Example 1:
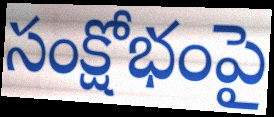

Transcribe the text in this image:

సంక్షోభంపై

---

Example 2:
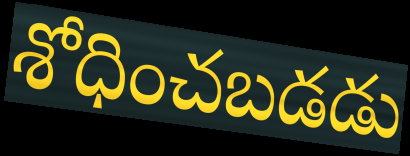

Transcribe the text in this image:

శోధించబడడు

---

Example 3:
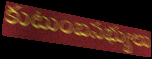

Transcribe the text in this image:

కుటుంబసభ్యులు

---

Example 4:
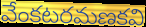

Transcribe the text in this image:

వేంకటరమణకవి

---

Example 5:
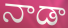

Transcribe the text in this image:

నాడా